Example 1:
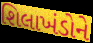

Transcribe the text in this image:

શિલાખંડોને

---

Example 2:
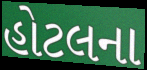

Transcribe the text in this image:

હોટલના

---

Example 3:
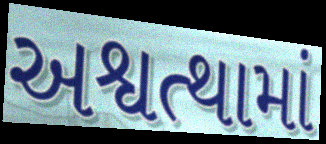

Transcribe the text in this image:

અશ્વત્થામાં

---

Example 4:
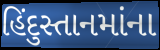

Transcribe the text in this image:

હિંદુસ્તાનમાંના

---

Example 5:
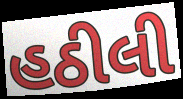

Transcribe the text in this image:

હઠીલી